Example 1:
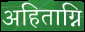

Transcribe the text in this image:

अहिताग्नि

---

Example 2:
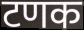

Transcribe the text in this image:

टणक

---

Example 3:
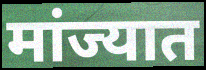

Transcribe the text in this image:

मांज्यात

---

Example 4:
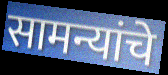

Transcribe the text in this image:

सामन्यांचे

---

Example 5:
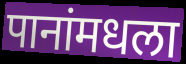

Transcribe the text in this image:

पानांमधला